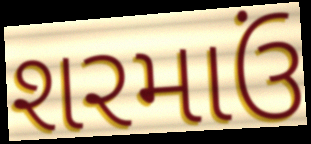
શરમાઉં